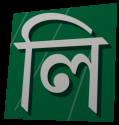
লি